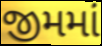
જીમમાં